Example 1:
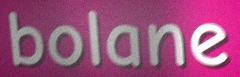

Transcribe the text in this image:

bolane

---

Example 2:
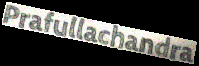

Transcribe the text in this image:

Prafullachandra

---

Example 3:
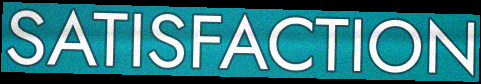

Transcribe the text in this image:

SATISFACTION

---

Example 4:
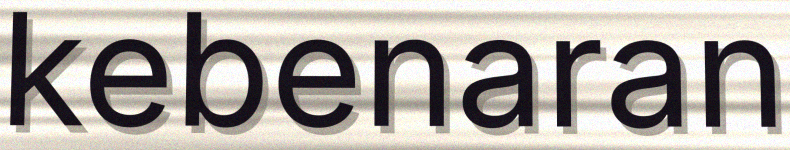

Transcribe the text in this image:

kebenaran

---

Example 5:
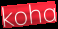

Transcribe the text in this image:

koha